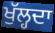
ਖੁੱਲ੍ਹਦਾ